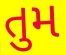
તુમ